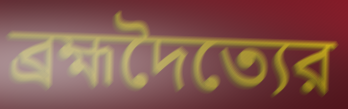
ব্রহ্মদৈত্যের